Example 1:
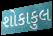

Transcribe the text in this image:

શોકાકુલ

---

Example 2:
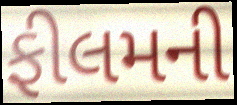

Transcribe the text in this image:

ફીલમની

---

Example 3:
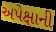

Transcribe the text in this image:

અપેક્ષાની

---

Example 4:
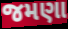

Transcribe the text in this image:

જમણા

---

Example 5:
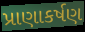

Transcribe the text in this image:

પ્રાણાકર્ષણ